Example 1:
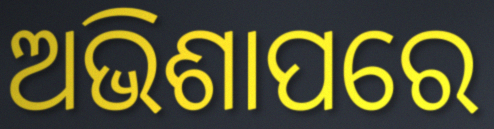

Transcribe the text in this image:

ଅଭିଶାପରେ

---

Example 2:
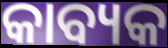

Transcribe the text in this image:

କାବ୍ୟକ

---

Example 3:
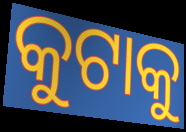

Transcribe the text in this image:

କୁଟାକୁ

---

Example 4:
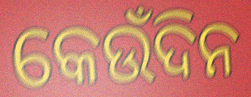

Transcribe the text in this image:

କେଉଁଦିନ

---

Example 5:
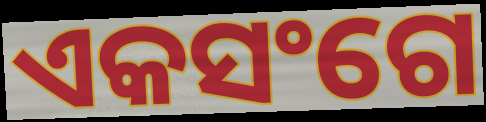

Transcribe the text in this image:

ଏକସଂଗେ